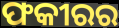
ଫକୀରର